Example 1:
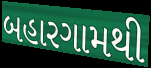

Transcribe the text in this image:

બહારગામથી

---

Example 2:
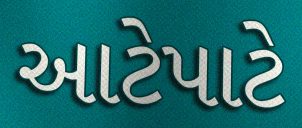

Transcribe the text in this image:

આટેપાટે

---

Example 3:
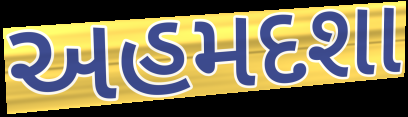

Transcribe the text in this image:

અહમદશા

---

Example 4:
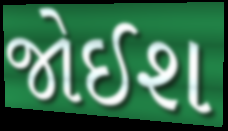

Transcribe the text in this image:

જોઈશ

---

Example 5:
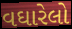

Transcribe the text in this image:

વઘારેલો